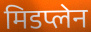
मिडप्लेन